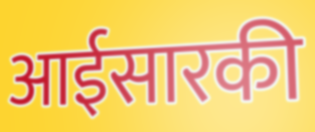
आईसारकी